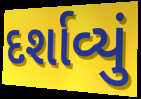
દર્શાવ્યું